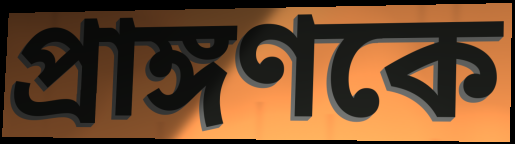
প্রাঙ্গণকে